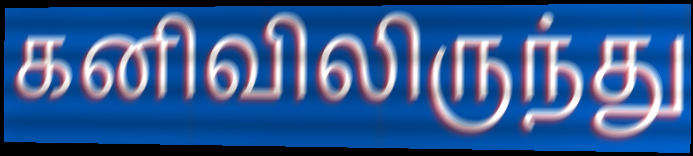
கனிவிலிருந்து